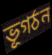
ভূগঠন